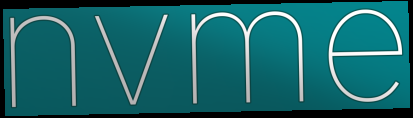
nvme